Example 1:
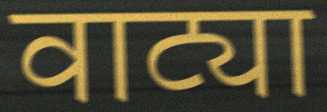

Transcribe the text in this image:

वाट्या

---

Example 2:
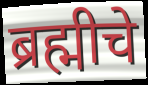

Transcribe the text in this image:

ब्रह्मीचे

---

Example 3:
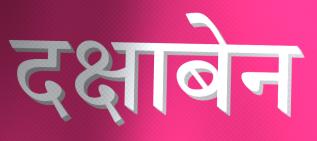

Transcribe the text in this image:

दक्षाबेन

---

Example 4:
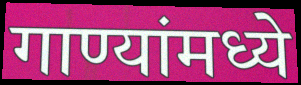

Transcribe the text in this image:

गाण्यांमध्ये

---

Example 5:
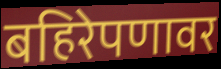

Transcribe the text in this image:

बहिरेपणावर